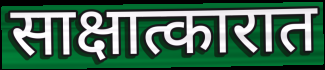
साक्षात्कारात